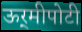
ऊर्मीपोटी